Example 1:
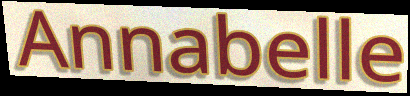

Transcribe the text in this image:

Annabelle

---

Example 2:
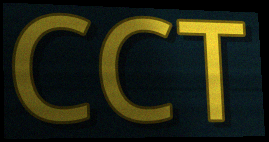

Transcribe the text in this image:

CCT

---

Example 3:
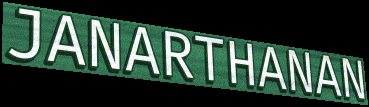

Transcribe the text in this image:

JANARTHANAN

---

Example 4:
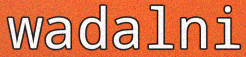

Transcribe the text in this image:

wadalni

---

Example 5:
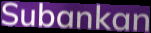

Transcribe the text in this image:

Subankan